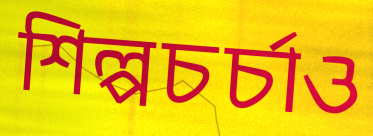
শিল্পচর্চাও